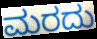
ಮರದು